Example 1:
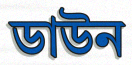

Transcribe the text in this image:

ডাউন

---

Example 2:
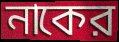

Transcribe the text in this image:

নাকের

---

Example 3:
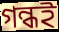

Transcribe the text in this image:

গন্ধই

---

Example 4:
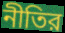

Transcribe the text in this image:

নীতির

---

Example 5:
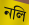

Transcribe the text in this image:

নলি